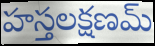
హస్తలక్షణమ్